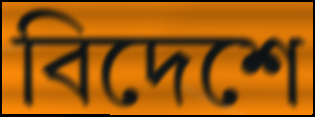
বিদেশে